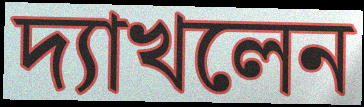
দ্যাখলেন